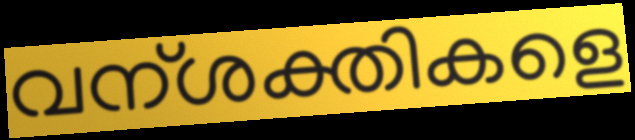
വന്ശക്തികളെ